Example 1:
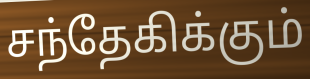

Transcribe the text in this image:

சந்தேகிக்கும்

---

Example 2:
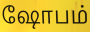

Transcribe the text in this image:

ஷோபம்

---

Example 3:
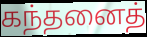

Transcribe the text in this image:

கந்தனைத்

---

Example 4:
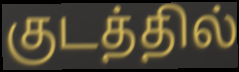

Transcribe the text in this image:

குடத்தில்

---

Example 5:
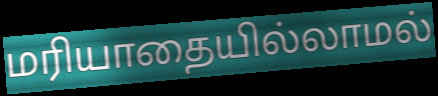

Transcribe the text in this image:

மரியாதையில்லாமல்